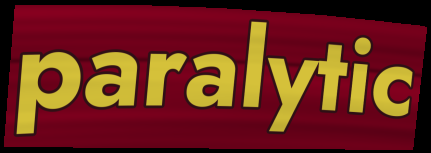
paralytic